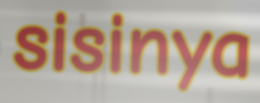
sisinya